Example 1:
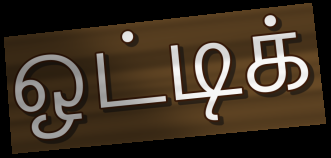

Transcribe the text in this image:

ஒட்டிக்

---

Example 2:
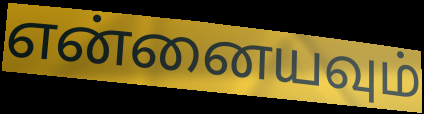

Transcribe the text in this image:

என்னையவும்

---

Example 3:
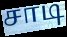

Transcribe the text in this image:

சாடி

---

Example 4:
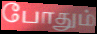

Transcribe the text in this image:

போதும்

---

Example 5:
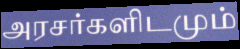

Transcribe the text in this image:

அரசர்களிடமும்